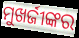
ମୁଖର୍ଜୀଙ୍କର